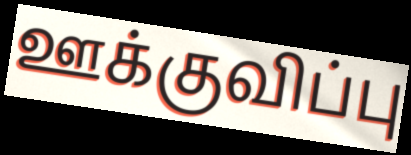
ஊக்குவிப்பு